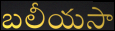
బలీయసా